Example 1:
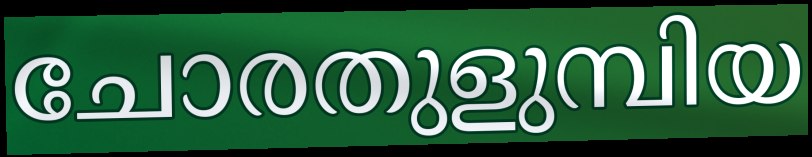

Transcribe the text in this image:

ചോരതുളുമ്പിയ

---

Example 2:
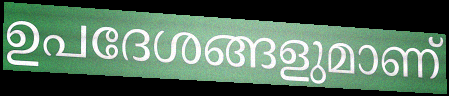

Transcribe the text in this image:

ഉപദേശങ്ങളുമാണ്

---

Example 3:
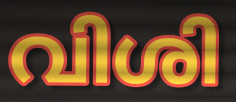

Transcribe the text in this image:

വിശി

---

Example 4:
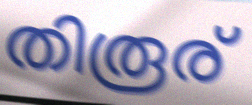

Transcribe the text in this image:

തിരൂര്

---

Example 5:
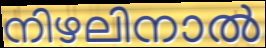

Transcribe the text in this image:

നിഴലിനാൽ